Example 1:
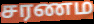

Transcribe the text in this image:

சரணம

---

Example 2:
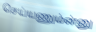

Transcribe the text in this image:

செய்யணும்ன்னு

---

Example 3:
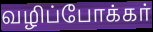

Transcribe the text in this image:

வழிப்போக்கர்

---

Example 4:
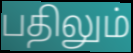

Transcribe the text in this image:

பதிலும்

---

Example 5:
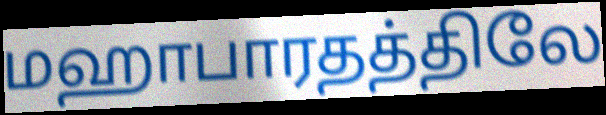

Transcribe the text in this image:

மஹாபாரதத்திலே